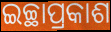
ଇଚ୍ଛାପ୍ରକାଶ